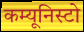
कम्यूनिस्टो